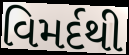
વિમર્દથી